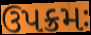
ઉપક્રમઃ